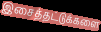
இசைத்தட்டுக்களை